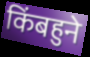
किंबहुने